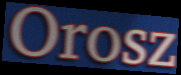
Orosz